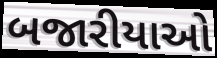
બજારીયાઓ